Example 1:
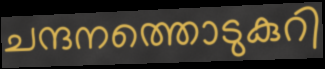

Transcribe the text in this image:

ചന്ദനത്തൊടുകുറി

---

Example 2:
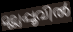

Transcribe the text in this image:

മുല്ലപ്പൂവിൽ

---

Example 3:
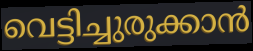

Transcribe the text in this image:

വെട്ടിച്ചുരുക്കാൻ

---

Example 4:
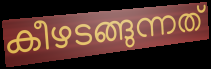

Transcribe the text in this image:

കീഴടങ്ങുന്നത്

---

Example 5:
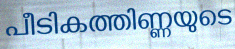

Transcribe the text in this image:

പീടികത്തിണ്ണയുടെ